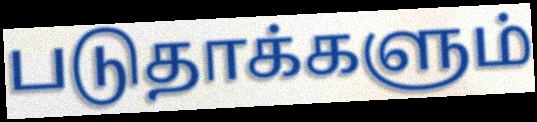
படுதாக்களும்